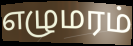
எழுமரம்